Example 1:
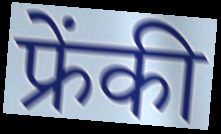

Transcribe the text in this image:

फ्रेंकी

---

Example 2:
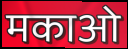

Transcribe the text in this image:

मकाओ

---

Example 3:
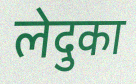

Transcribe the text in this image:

लेदुका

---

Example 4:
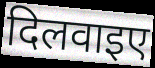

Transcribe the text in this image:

दिलवाइए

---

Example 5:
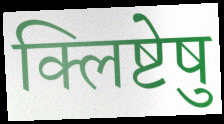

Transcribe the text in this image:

क्लिष्टेषु